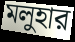
মলুহার